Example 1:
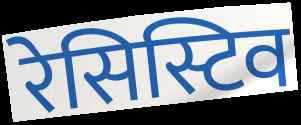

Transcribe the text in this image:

रेसिस्टिव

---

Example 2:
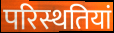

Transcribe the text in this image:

परिस्थतियां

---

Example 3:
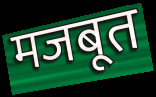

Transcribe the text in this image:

मजबूत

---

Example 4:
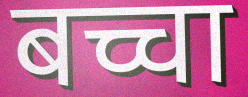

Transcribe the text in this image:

बच्चा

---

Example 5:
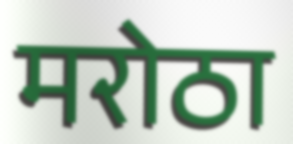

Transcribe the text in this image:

मरोठा